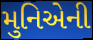
મુનિએની